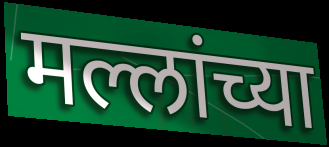
मल्लांच्या